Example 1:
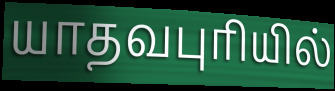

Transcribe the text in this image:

யாதவபுரியில்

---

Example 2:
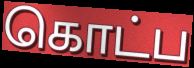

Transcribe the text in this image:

கொட்ப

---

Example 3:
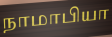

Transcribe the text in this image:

நாமாபியா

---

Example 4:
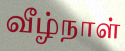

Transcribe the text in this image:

வீழ்நாள்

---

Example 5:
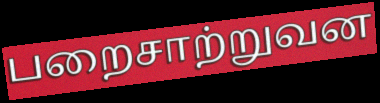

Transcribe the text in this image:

பறைசாற்றுவன